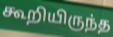
கூறியிருந்த